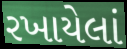
રખાયેલાં